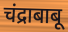
चंद्राबाबू